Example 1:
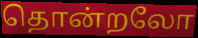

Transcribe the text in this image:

தொன்றலோ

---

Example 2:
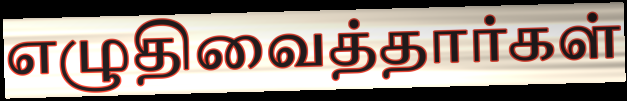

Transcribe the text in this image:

எழுதிவைத்தார்கள்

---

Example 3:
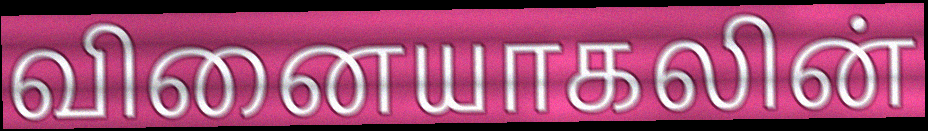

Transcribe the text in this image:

வினையாகலின்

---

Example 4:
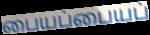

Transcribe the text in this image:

பையப்பையப்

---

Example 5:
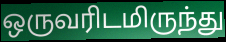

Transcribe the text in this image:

ஒருவரிடமிருந்து